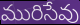
మురిసేవు